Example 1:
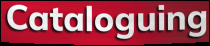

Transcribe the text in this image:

Cataloguing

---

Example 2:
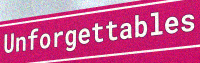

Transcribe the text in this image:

Unforgettables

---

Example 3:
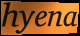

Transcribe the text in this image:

hyena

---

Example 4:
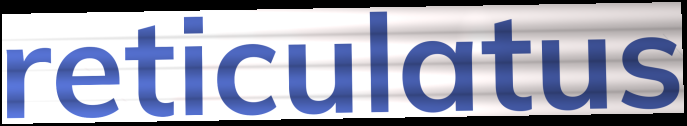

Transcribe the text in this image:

reticulatus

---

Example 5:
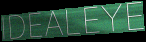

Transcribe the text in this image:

IDEALEYE